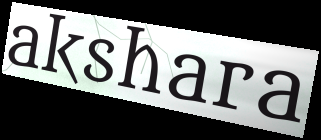
akshara